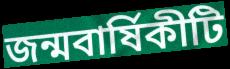
জন্মবার্ষিকীটি